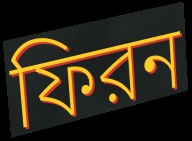
ফিরন